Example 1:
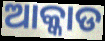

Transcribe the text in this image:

ଆକ୍କାଡ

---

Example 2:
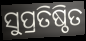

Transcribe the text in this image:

ସୁପ୍ରତିଷ୍ଠିତ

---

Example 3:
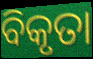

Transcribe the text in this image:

ବିକୃତା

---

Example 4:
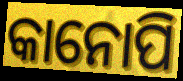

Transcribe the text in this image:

କାନୋପି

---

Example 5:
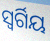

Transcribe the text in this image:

ସ୍ୱର୍ଗିୟ